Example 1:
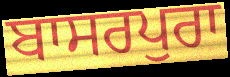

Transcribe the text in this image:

ਬਾਸਰਪੁਰਾ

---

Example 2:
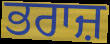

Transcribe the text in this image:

ਭਰਾਜ਼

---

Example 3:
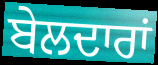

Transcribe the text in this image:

ਬੇਲਦਾਰਾਂ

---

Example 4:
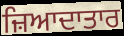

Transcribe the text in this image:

ਜ਼ਿਆਦਾਤਾਰ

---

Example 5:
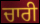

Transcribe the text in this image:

ਚਾਰੀ